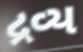
દ્રવ્ય